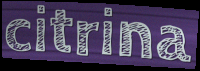
citrina